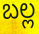
బల్ల